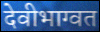
देवीभाग्वत